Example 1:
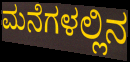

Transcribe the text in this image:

ಮನೆಗಳಲ್ಲಿನ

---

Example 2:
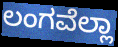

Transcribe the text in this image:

ಲಂಗವೆಲ್ಲಾ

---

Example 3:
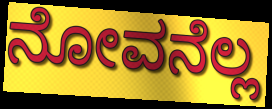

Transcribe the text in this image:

ನೋವನೆಲ್ಲ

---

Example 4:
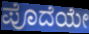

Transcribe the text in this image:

ಪೊದೆಯೇ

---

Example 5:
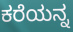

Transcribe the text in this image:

ಕರೆಯನ್ನ